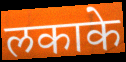
लकाके